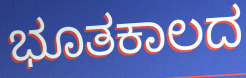
ಭೂತಕಾಲದ